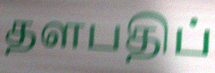
தளபதிப்